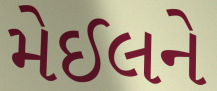
મેઈલને